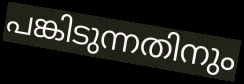
പങ്കിടുന്നതിനും